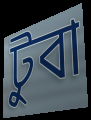
টুবা